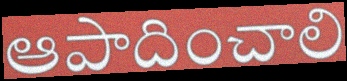
ఆపాదించాలి